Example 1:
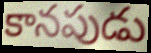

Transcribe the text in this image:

కానపుడు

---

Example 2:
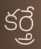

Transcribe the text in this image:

కర్త్రే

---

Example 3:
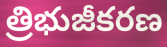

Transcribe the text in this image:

త్రిభుజీకరణ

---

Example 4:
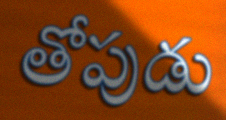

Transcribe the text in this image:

తోపుడు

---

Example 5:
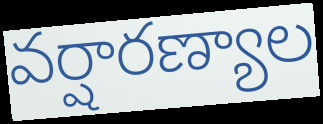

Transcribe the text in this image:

వర్షారణ్యాల